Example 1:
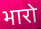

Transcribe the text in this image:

भारो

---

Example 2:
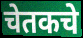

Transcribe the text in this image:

चेतकचे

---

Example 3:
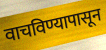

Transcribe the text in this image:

वाचविण्यापासून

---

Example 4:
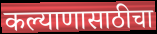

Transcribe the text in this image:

कल्याणासाठीचा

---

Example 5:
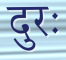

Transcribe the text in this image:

दुरः